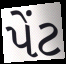
પેંટ